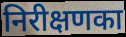
निरीक्षणका